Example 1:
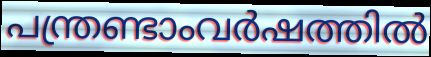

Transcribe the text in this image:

പന്ത്രണ്ടാംവർഷത്തിൽ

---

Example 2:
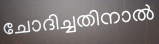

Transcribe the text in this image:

ചോദിച്ചതിനാൽ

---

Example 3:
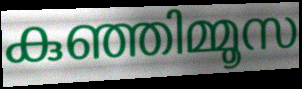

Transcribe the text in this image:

കുഞ്ഞിമ്മൂസ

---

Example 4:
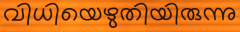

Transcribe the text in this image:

വിധിയെഴുതിയിരുന്നു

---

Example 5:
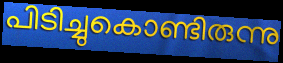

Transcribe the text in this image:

പിടിച്ചുകൊണ്ടിരുന്നു